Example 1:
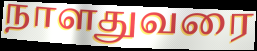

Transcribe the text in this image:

நாளதுவரை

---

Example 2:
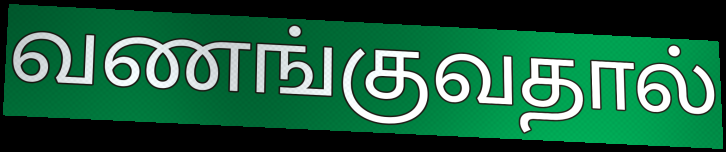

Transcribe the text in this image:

வணங்குவதால்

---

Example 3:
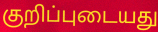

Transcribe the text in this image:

குறிப்புடையது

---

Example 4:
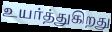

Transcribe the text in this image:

உயர்த்துகிறது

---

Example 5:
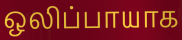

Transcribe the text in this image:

ஒலிப்பாயாக